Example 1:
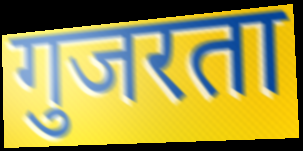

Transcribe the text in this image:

गुजरता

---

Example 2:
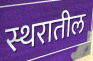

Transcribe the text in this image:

स्थरातील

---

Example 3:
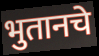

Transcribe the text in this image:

भुतानचे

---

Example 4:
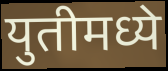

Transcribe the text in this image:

युतीमध्ये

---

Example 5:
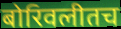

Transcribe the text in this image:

बोरिवलीतच